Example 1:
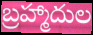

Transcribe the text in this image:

బ్రహ్మాదుల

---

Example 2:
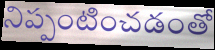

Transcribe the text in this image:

నిప్పంటించడంతో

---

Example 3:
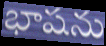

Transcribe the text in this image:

భాషను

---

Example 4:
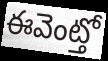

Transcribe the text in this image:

ఈవెంట్తో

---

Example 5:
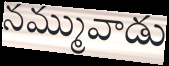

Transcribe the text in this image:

నమ్మువాడు